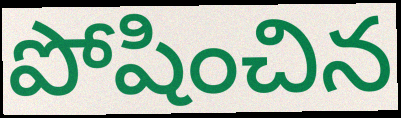
పోషించిన